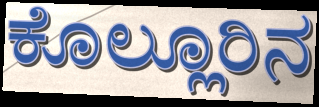
ಕೊಲ್ಲೂರಿನ